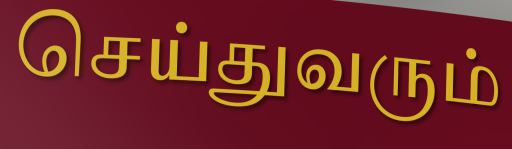
செய்துவரும்